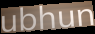
ubhun